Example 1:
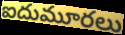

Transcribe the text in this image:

ఐదుమూరలు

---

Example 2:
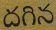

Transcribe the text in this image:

దగిన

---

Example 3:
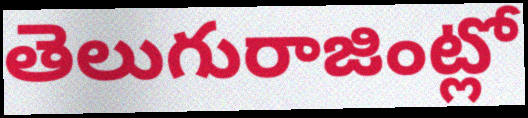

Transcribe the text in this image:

తెలుగురాజింట్లో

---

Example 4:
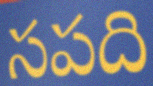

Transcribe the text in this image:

సపది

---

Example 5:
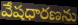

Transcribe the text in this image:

వేషధారణను